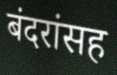
बंदरांसह